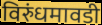
विरुंधमावडी